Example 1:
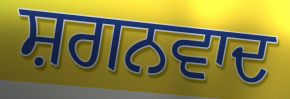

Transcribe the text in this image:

ਸ਼ਗਨਵਾਦ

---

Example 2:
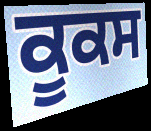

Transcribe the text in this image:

ਕੂਕਸ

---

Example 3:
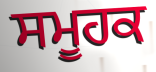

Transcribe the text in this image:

ਸਮੂਹਕ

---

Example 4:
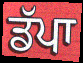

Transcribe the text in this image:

ਡੱਪਾ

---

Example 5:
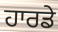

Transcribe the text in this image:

ਹਾਰਡੇ